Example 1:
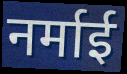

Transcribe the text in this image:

नर्माई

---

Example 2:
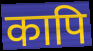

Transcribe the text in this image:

कापि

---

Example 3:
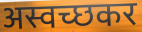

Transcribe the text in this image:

अस्वच्छकर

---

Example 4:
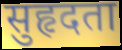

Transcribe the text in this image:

सुहृदता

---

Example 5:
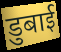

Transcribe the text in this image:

डुबाई